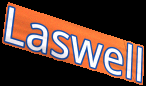
Laswell